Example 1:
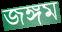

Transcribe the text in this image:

জঙ্গম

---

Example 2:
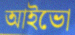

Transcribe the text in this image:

আইভো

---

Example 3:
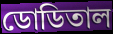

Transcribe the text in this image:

ডোডিতাল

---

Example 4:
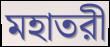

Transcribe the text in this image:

মহাতরী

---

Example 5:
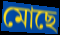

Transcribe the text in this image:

মোছে